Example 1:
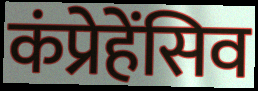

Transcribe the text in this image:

कंप्रेहेंसिव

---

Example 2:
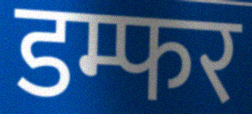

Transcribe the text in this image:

डम्फर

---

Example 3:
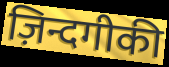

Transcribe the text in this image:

ज़िन्दगीकी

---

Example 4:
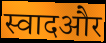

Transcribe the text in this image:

स्वादऔर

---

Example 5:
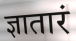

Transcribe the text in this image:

ज्ञातारं